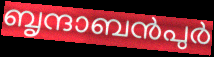
ബൃന്ദാബൻപുർ